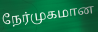
நேர்முகமான